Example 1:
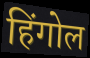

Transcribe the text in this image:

हिंगोल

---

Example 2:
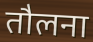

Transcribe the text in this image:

तौलना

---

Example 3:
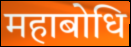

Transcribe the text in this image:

महाबोधि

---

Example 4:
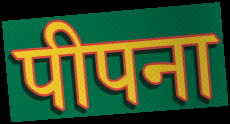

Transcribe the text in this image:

पीपना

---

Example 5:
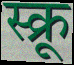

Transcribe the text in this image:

स्क्रू